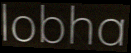
lobha